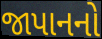
જાપાનનો